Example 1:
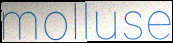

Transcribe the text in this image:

molluse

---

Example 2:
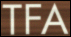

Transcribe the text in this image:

TFA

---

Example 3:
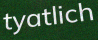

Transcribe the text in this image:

tyatlich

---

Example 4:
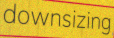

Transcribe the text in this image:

downsizing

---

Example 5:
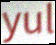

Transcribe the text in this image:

yul